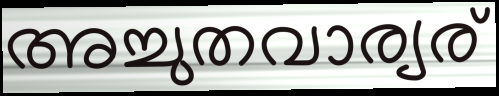
അച്ചുതവാര്യര്